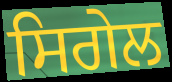
ਸਿਗੇਲ